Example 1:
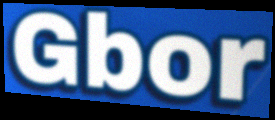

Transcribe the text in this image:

Gbor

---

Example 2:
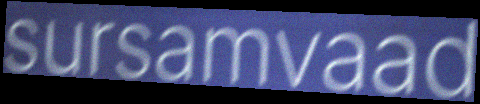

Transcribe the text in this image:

sursamvaad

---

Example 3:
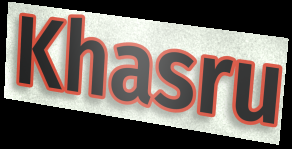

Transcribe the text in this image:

Khasru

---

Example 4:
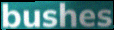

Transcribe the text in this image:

bushes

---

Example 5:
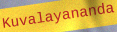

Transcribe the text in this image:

Kuvalayananda